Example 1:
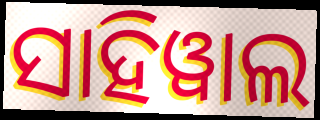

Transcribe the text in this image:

ସାହିୱାଲ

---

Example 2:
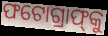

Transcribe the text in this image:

ଫଟୋଗ୍ରାଫ୍‌କୁ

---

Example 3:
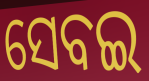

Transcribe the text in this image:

ସେବଇ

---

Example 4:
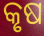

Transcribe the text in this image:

କୃଷ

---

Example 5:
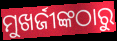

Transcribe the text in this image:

ମୁଖର୍ଜୀଙ୍କଠାରୁ